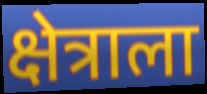
क्षेत्राला